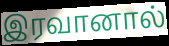
இரவானால்